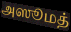
அஸூமத்